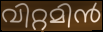
വിറ്റമിൻ